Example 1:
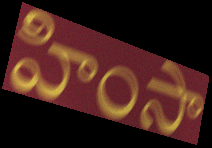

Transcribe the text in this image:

హింసా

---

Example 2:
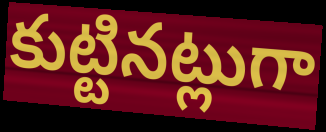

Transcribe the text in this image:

కుట్టినట్లుగా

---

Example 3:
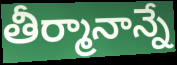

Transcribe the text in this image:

తీర్మానాన్నే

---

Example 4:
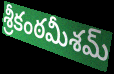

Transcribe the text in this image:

శ్రీకంఠమీశమ్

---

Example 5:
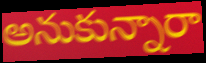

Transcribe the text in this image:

అనుకున్నారా